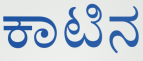
ಕಾಟಿನ